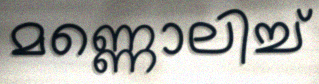
മണ്ണൊലിച്ച്